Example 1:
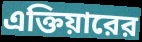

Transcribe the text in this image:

এক্তিয়ারের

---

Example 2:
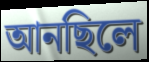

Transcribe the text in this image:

আনছিলে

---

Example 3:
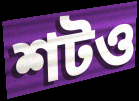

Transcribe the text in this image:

শটও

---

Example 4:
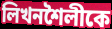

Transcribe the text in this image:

লিখনশৈলীকে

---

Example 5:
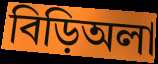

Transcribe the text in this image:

বিড়িঅলা